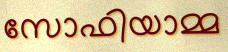
സോഫിയാമ്മ